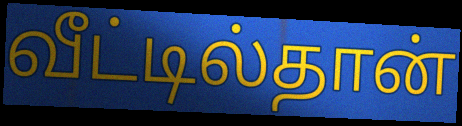
வீட்டில்தான்